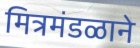
मित्रमंडळाने